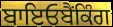
ਬਾਇਓਬੈਂਕਿੰਗ